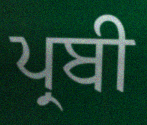
ਪ੍ਰਬੀ